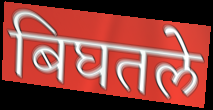
बिघतले